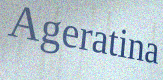
Ageratina